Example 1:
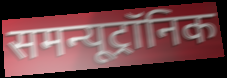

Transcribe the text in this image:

समन्यूट्रॉनिक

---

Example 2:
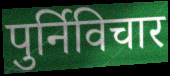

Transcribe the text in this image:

पुर्निविचार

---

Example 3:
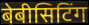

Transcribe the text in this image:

बेबीसिटिंग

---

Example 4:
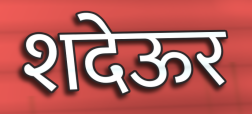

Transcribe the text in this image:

शदेऊर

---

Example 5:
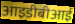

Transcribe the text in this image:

आइडीबीआई